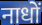
नाधों